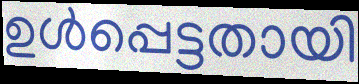
ഉൾപ്പെട്ടതായി